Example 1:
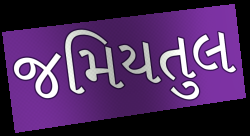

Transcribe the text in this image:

જમિયતુલ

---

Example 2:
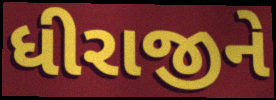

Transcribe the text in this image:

ધીરાજીને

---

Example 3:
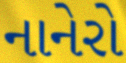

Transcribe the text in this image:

નાનેરો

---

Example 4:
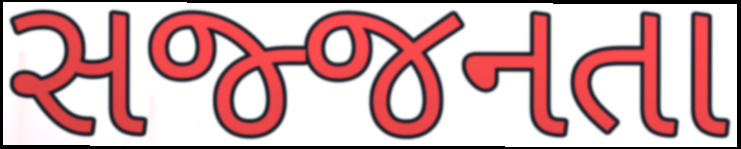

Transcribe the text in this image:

સજ્જનતા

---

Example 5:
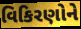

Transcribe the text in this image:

વિકિરણોને